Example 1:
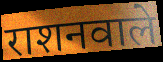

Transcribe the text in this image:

राशनवाले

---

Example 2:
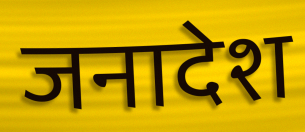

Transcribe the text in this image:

जनादेश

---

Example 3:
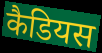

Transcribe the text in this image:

कैडियस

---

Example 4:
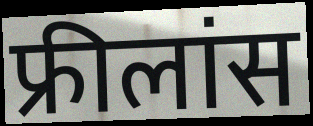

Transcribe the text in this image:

फ्रीलांस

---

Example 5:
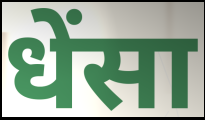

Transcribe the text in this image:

धेंसा